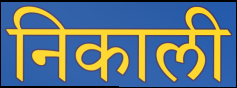
निकाली